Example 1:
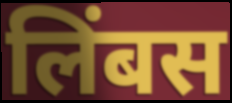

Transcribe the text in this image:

लिंबस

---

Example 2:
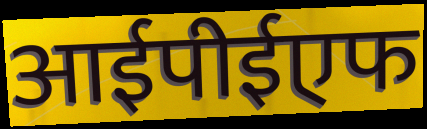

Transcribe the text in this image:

आईपीईएफ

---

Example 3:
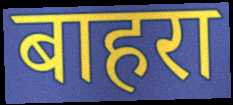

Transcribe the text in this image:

बाहरा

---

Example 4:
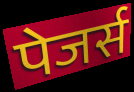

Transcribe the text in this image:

पेजर्स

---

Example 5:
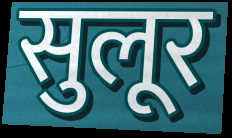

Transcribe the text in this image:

सुलूर